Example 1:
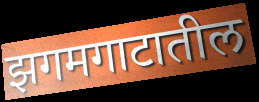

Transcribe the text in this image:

झगमगाटातील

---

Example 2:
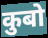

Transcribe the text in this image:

कुबो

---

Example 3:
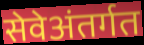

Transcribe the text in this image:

सेवेअंतर्गत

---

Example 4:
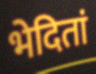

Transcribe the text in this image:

भेदितां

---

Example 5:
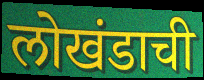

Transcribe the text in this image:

लोखंडाची